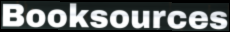
Booksources